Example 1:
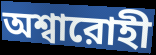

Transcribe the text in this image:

অশ্বারোহী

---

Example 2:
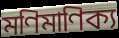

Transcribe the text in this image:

মণিমাণিক্য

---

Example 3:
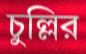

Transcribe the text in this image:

চুল্লির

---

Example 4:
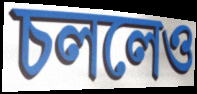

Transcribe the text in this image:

চললেও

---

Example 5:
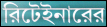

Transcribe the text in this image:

রিটেইনারের